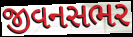
જીવનસભર